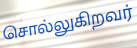
சொல்லுகிறவர்